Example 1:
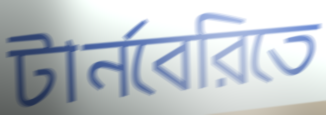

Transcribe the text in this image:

টার্নবেরিতে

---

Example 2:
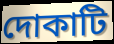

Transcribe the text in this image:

দোকাটি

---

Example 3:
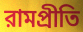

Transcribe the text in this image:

রামপ্রীতি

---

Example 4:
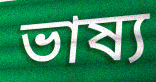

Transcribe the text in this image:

ভাষ্য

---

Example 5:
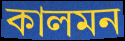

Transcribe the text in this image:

কালমন